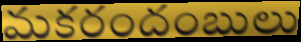
మకరందంబులు